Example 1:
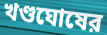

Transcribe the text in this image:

খণ্ডঘোষের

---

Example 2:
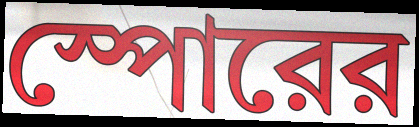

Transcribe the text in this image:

স্পোরের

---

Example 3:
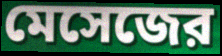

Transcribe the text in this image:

মেসেজের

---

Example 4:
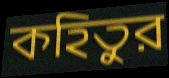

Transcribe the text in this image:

কহিতুর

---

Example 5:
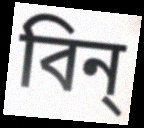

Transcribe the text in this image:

বিন্